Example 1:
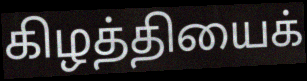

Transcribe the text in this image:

கிழத்தியைக்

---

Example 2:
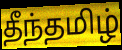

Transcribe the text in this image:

தீந்தமிழ்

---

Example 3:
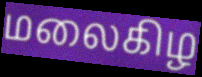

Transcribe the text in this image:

மலைகிழ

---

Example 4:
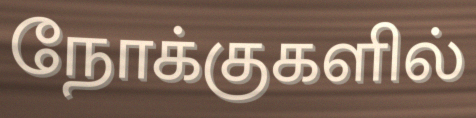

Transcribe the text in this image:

நோக்குகளில்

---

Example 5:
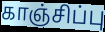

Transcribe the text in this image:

காஞ்சிப்பு